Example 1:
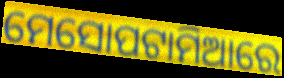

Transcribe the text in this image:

ମେସୋପଟାମିଆରେ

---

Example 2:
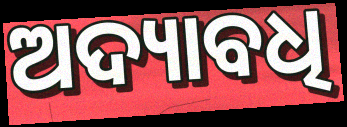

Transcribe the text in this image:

ଅଦ୍ୟାବଧି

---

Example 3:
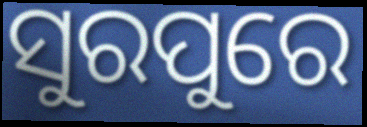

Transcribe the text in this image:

ସୁରପୁରେ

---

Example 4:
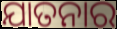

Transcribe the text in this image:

ଯାତନାର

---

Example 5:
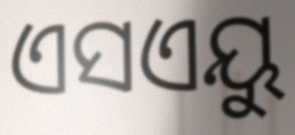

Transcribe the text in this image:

ଏସଏୟୁ